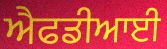
ਐਫਡੀਆਈ